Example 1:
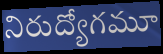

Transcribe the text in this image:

నిరుద్యోగమూ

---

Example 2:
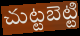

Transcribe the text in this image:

చుట్టబెట్టి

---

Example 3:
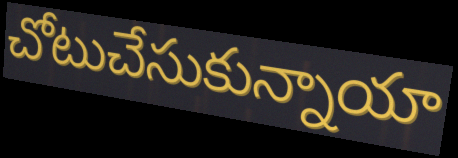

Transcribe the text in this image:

చోటుచేసుకున్నాయా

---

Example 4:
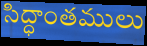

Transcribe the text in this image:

సిద్ధాంతములు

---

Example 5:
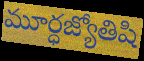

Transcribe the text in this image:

మూర్ధజ్యోతిషి